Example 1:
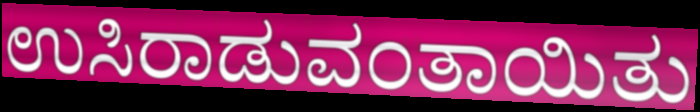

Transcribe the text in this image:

ಉಸಿರಾಡುವಂತಾಯಿತು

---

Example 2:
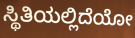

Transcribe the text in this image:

ಸ್ಥಿತಿಯಲ್ಲಿದೆಯೋ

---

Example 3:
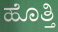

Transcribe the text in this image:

ಹೊತ್ತಿ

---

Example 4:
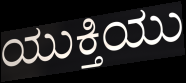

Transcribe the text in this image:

ಯುಕ್ತಿಯು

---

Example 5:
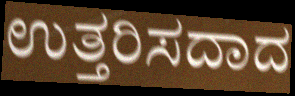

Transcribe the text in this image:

ಉತ್ತರಿಸದಾದ